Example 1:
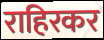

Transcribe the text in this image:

राहिरकर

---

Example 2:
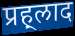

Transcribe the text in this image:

प्रह्‌लाद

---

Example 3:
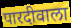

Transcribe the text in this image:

पारदीवाला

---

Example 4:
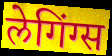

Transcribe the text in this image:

लेगिंग्स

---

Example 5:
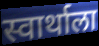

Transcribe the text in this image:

स्वार्थाला